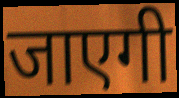
जाएगी